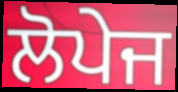
ਲੋਪੇਜ